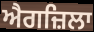
ਐਗਜ਼ਿਲਾ